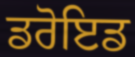
ਡਰੋਇਡ